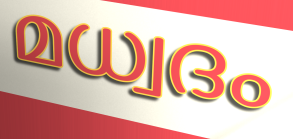
മധ്വദം